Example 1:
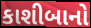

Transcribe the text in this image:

કાશીબાનો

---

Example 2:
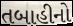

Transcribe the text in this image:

તબાહીનો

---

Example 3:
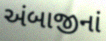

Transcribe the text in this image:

અંબાજીનાં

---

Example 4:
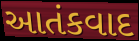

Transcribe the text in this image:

આતંકવાદ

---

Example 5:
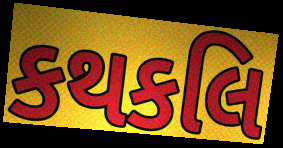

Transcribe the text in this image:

કથકલિ